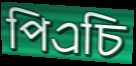
পিএচি